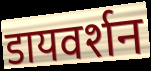
डायवर्शन